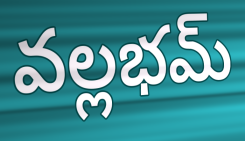
వల్లభమ్